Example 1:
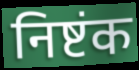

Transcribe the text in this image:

निष्टंक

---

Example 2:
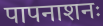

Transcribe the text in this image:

पापनाशनः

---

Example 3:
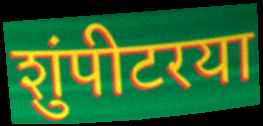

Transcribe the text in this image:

शुंपीटरया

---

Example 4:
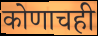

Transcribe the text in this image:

कोणाचही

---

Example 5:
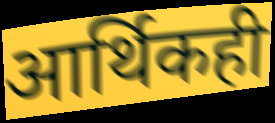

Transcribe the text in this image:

आर्थिकही